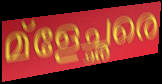
മ്ളേച്ഛരെ